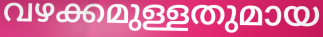
വഴക്കമുള്ളതുമായ